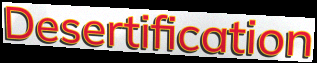
Desertification